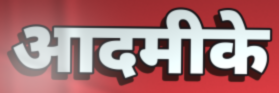
आदमीके